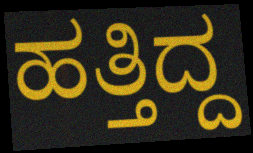
ಹತ್ತಿದ್ದ